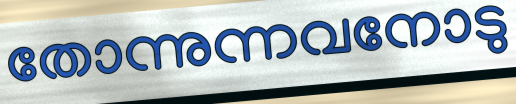
തോന്നുന്നവനോടു